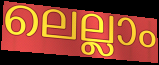
ലെല്ലാം